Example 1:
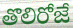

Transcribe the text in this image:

తొలిరోజే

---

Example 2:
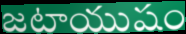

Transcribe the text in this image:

జటాయుషం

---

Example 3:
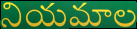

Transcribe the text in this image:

నియమాల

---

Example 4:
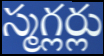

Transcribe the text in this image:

స్మగ్లర్లు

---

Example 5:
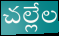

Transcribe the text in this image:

చల్లేల